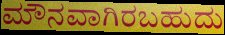
ಮೌನವಾಗಿರಬಹುದು